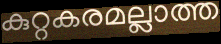
കുറ്റകരമല്ലാത്ത